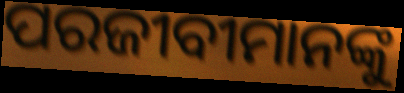
ପରଜୀବୀମାନଙ୍କୁ